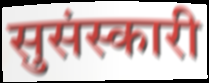
सुसंस्कारी